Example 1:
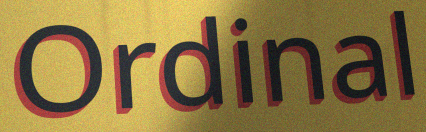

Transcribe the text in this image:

Ordinal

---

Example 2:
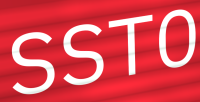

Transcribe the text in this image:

SSTO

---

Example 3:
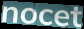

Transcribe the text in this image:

nocet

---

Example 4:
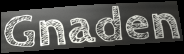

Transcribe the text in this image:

Gnaden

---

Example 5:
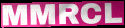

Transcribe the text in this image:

MMRCL